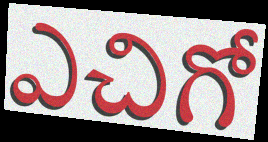
ఎచిగో